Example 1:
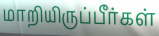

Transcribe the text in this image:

மாறியிருப்பீர்கள்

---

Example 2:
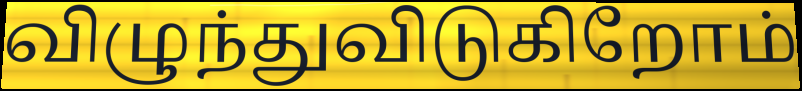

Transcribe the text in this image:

விழுந்துவிடுகிறோம்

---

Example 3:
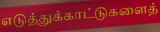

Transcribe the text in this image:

எடுத்துக்காட்டுகளைத்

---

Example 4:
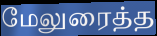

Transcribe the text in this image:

மேலுரைத்த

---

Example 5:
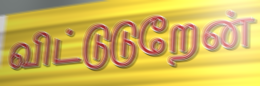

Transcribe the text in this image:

விட்டுடுறேன்